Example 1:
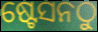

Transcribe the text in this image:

ଷ୍ଟେସନଠୁ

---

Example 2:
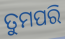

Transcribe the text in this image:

ତୁମପରି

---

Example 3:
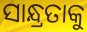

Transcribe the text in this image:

ସାନ୍ଧ୍ରତାକୁ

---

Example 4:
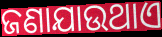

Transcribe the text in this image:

ଜଣାଯାଉଥାଏ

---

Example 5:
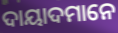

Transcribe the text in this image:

ଦାୟାଦମାନେ